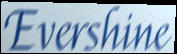
Evershine